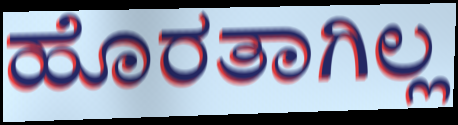
ಹೊರತಾಗಿಲ್ಲ